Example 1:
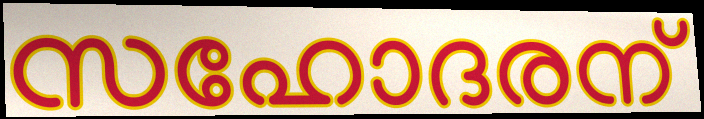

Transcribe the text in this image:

സഹോദരന്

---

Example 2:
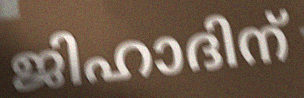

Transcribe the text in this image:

ജിഹാദിന്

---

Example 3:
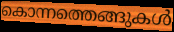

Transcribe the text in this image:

കൊന്നത്തെങ്ങുകൾ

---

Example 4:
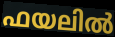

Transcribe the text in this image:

ഫയലിൽ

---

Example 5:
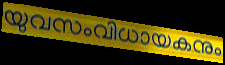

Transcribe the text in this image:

യുവസംവിധായകനും